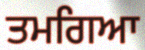
ਤਮਗਿਆ